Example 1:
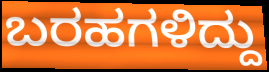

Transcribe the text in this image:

ಬರಹಗಳಿದ್ದು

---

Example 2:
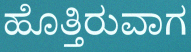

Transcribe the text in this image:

ಹೊತ್ತಿರುವಾಗ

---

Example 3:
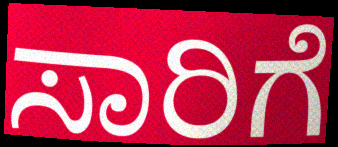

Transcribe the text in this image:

ಸಾರಿಗೆ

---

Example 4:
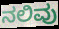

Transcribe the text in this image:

ನಲಿವು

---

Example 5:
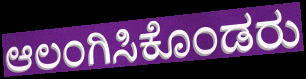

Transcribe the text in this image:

ಆಲಂಗಿಸಿಕೊಂಡರು